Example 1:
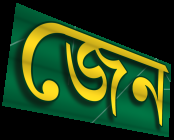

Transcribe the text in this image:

জেন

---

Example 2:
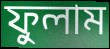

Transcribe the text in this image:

ফুলাম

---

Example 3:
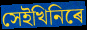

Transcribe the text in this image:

সেইখিনিৰে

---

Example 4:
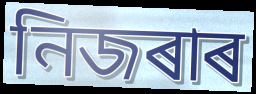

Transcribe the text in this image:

নিজৰাৰ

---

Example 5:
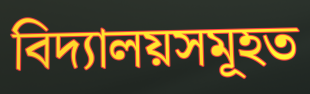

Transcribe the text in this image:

বিদ্যালয়সমূহত